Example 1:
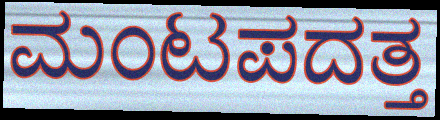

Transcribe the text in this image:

ಮಂಟಪದತ್ತ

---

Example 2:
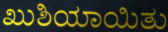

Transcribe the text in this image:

ಖುಶಿಯಾಯಿತು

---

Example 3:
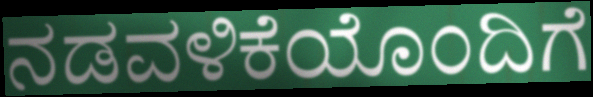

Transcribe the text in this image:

ನಡವಳಿಕೆಯೊಂದಿಗೆ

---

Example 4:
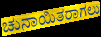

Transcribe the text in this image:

ಚುನಾಯಿತರಾಗಲು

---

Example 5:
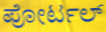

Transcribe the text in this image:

ಪೋರ್ಟಲ್